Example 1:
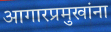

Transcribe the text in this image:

आगारप्रमुखांना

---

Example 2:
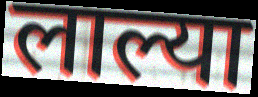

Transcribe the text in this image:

लाल्या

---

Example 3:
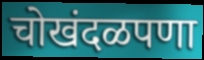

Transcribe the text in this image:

चोखंदळपणा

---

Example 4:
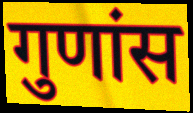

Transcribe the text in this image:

गुणांस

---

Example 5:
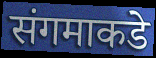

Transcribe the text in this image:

संगमाकडे